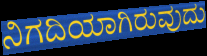
ನಿಗದಿಯಾಗಿರುವುದು